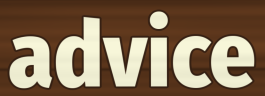
advice